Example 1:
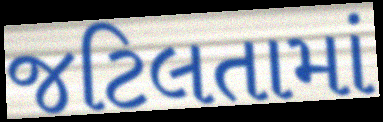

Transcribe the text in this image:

જટિલતામાં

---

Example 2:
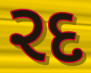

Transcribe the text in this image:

રદ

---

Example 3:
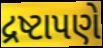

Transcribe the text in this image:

દ્રષ્ટાપણે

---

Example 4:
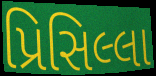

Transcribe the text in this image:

પ્રિસિલ્લા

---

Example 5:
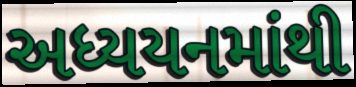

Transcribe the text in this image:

અધ્યયનમાંથી